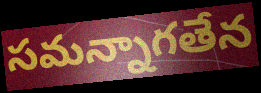
సమన్నాగతేన